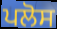
ਪਲੋਸ